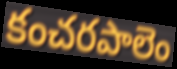
కంచరపాలెం